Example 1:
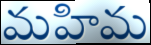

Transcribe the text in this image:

మహిమ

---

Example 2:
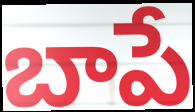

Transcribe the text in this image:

బాపే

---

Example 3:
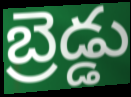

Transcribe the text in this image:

బ్రెడ్డు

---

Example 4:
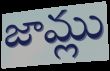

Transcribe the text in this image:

జామ్లు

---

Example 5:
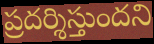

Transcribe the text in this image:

ప్రదర్శిస్తుందని